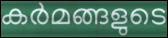
കർമങ്ങളുടെ